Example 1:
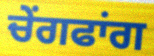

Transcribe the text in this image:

ਚੇਂਗਫਾਂਗ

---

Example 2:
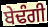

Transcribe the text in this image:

ਬੇਢੰਗੀ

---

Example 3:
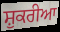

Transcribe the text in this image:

ਸ਼ੁਕਰੀਆ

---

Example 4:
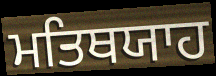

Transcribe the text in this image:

ਮਤਿਥਯਾਹ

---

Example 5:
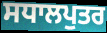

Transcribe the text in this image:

ਸਧਾਲਪੁਤਰ